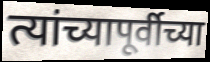
त्यांच्यापूर्वीच्या